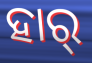
ହାର୍